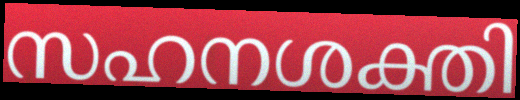
സഹനശക്തി